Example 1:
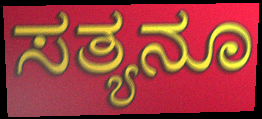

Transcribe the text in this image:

ಸತ್ಯನೂ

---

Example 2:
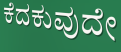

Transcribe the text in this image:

ಕೆದಕುವುದೇ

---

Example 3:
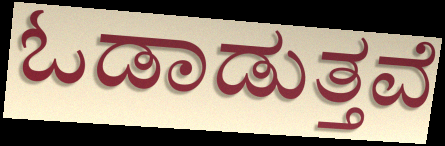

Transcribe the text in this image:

ಓಡಾಡುತ್ತವೆ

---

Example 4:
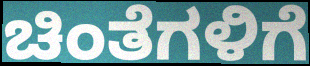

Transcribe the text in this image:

ಚಿಂತೆಗಳಿಗೆ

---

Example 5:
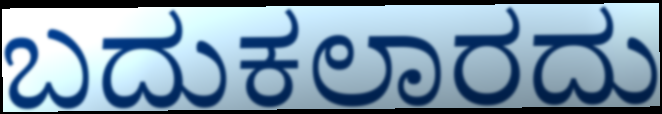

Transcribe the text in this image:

ಬದುಕಲಾರದು